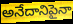
అనేదానిపైనా